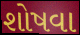
શોષવા